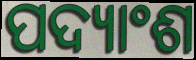
ପଦ୍ୟାଂଶ